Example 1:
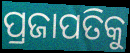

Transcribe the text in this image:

ପ୍ରଜାପତିକୁ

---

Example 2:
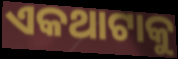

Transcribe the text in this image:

ଏକଥାଟାକୁ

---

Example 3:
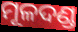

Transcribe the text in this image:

ମୂଳଦଣ୍ଡ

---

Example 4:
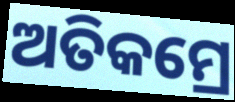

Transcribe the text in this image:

ଅତିକମ୍ରେ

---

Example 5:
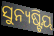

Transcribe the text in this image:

ସୁନ୍ୟଷ୍ଟିୟ